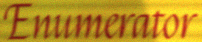
Enumerator